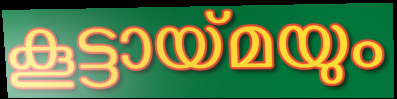
കൂട്ടായ്മയും